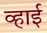
व्हाई